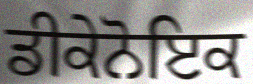
ਡੀਕੇਨੋਇਕ